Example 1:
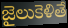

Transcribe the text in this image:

జైలుకెళితే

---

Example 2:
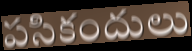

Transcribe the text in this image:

పసికందులు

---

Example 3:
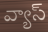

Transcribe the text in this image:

వ్యాస్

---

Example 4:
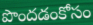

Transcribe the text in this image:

పొందడంకోసం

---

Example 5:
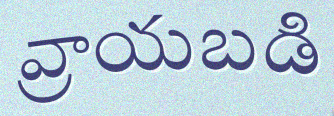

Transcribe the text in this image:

వ్రాయబడి